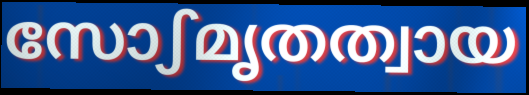
സോഽമൃതത്വായ